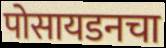
पोसायडनचा